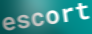
escort